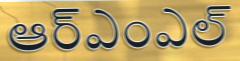
ఆర్ఎంఎల్